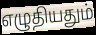
எழுதியதும்